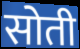
सोती